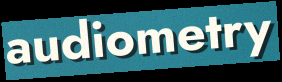
audiometry